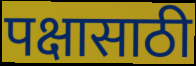
पक्षासाठी